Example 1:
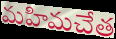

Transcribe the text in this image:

మహిమచేత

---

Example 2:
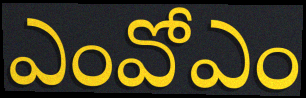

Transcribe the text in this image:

ఎంవోఎం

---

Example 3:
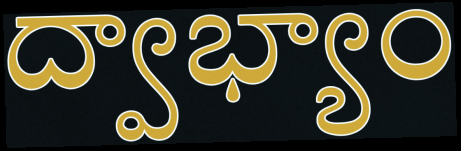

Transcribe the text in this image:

ద్వాభ్యాం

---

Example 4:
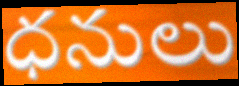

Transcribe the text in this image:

ధనులు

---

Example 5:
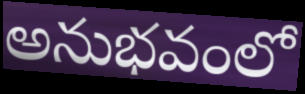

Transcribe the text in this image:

అనుభవంలో